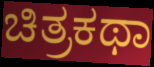
ಚಿತ್ರಕಥಾ